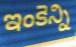
ఇంకెన్ని